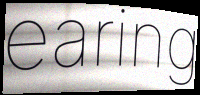
earing